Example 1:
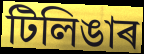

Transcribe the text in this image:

টিলিঙাৰ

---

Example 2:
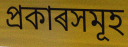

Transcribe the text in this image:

প্ৰকাৰসমূহ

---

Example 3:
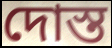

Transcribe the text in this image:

দোস্ত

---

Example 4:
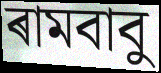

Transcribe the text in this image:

ৰামবাবু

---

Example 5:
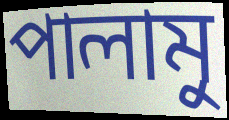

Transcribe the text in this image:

পালামু